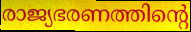
രാജ്യഭരണത്തിന്റെ